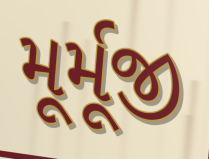
મૂર્મૂજી